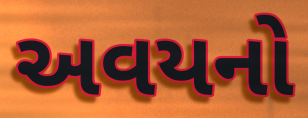
અવયનો